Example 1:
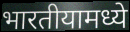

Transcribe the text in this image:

भारतीयामध्ये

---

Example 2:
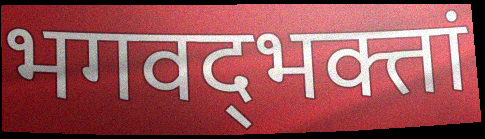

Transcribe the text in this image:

भगवद्भक्तां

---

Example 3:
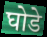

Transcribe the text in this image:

घोडे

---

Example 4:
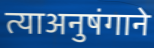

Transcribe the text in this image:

त्याअनुषंगाने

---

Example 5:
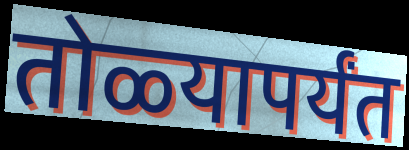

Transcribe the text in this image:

तोळ्यापर्यंत